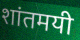
शांतमयी